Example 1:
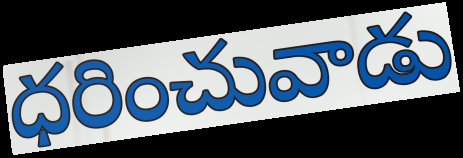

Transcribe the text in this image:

ధరించువాడు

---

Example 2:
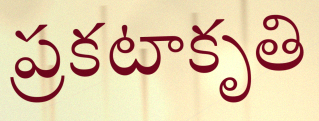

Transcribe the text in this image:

ప్రకటాకృతి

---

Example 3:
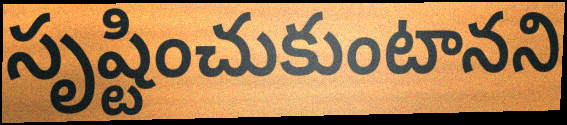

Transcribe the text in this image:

సృష్టించుకుంటానని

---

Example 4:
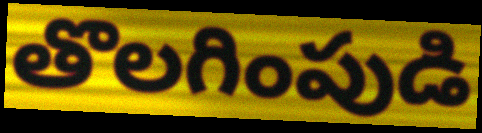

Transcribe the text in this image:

తొలగింపుడి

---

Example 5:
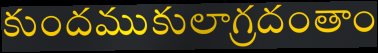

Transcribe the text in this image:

కుందముకులాగ్రదంతాం